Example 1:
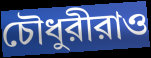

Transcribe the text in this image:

চৌধুরীরাও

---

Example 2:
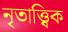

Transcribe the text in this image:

নৃতাত্ত্বিক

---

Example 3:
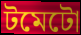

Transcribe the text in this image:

টমেটো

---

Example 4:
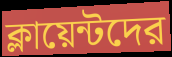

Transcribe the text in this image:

ক্লায়েন্টদের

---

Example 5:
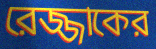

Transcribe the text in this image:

রেজ্জাকের